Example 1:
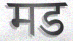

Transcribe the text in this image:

मड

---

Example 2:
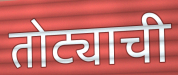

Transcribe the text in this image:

तोट्याची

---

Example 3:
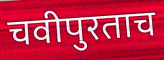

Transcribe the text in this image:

चवीपुरताच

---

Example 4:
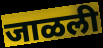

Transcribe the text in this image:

जाळली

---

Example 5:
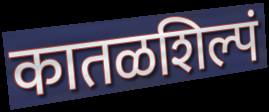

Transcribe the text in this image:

कातळशिल्पं